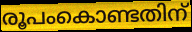
രൂപംകൊണ്ടതിന്